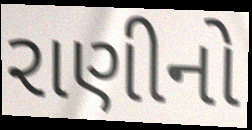
રાણીનો